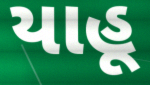
યાહૂ